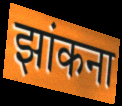
झांकना